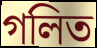
গলিত